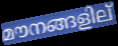
മൗനങ്ങളില്